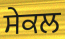
ਸੇਕਲ